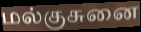
மல்குசுனை